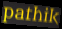
pathik